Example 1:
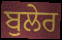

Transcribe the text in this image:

ਬੁਲੇਰ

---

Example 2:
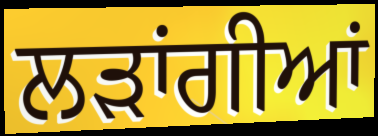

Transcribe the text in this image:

ਲੜਾਂਗੀਆਂ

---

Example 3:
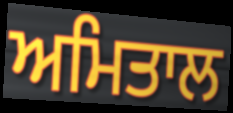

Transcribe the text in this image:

ਅਮਿਤਾਲ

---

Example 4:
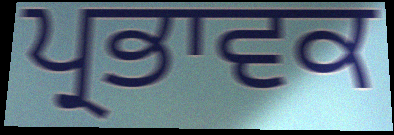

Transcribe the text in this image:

ਪ੍ਰਭਾਵਕ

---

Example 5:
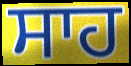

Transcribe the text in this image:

ਸਾਹ